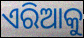
ଏରିଆକୁ